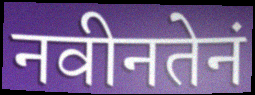
नवीनतेनं